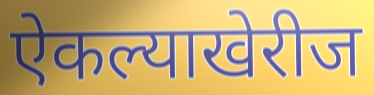
ऐकल्याखेरीज